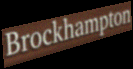
Brockhampton